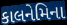
કાલનેમિના